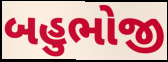
બહુભોજી